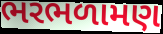
ભરભળામણ